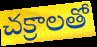
చక్రాలతో